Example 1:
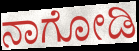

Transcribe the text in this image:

ನಾಗೋಡಿ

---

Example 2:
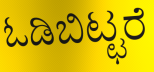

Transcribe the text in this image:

ಓಡಿಬಿಟ್ಟರೆ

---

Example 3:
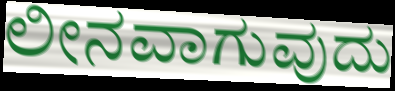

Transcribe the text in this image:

ಲೀನವಾಗುವುದು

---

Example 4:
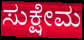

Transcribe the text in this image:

ಸುಕ್ಷೇಮ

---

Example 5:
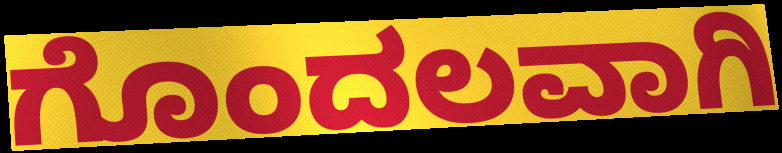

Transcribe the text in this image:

ಗೊಂದಲವಾಗಿ